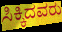
ಸಿಕ್ಕಿದವರು